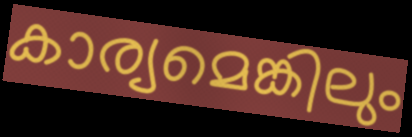
കാര്യമെങ്കിലും